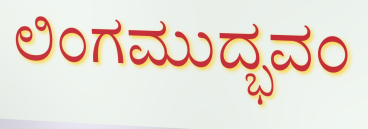
ಲಿಂಗಮುದ್ಭವಂ